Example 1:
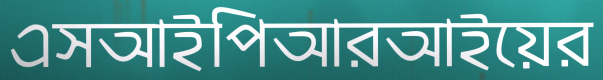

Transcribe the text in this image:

এসআইপিআরআইয়ের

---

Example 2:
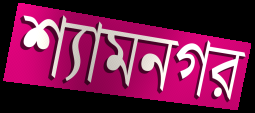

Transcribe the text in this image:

শ্যামনগর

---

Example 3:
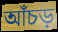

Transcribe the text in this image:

আঁচড়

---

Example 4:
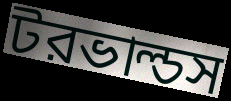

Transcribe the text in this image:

টরভাল্ডস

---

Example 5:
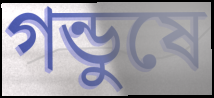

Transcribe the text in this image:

গন্ডুষে